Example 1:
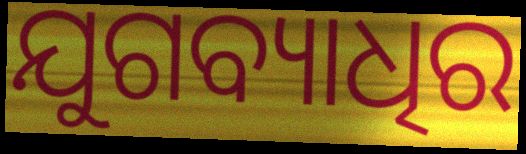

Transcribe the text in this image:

ଯୁଗବ୍ୟାଧିର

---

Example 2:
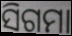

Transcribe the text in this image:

ସିଗମା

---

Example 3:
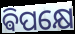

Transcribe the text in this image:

ଵିପକ୍ଷେ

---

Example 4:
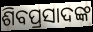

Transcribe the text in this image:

ଶିବପ୍ରସାଦଙ୍କ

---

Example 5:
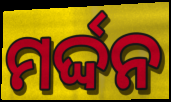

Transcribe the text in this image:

ମର୍ଦ୍ଦନ